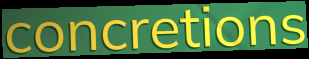
concretions